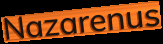
Nazarenus